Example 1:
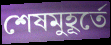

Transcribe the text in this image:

শেষমুহূর্তে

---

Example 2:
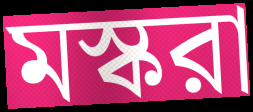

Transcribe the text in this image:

মস্করা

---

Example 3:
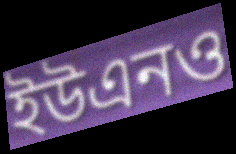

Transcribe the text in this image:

ইউএনও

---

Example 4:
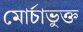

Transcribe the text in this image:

মোর্চাভুক্ত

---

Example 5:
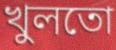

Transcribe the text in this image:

খুলতো